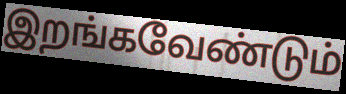
இறங்கவேண்டும்